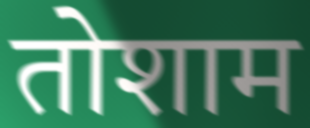
तोशाम